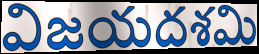
విజయదశమి